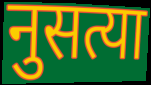
नुसत्या